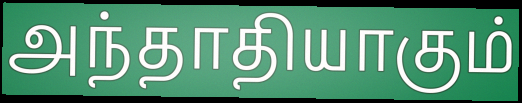
அந்தாதியாகும்